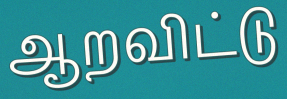
ஆறவிட்டு